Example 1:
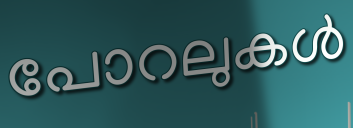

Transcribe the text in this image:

പോറലുകൾ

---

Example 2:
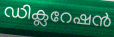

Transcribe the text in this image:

ഡിക്ലറേഷൻ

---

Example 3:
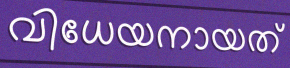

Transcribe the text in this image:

വിധേയനായത്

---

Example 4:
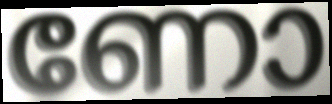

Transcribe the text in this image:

ണോ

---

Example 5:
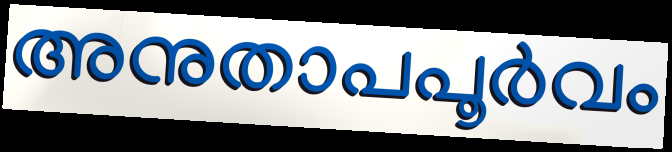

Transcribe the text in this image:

അനുതാപപൂർവം